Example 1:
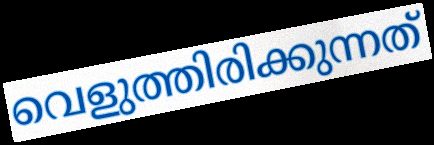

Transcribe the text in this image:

വെളുത്തിരിക്കുന്നത്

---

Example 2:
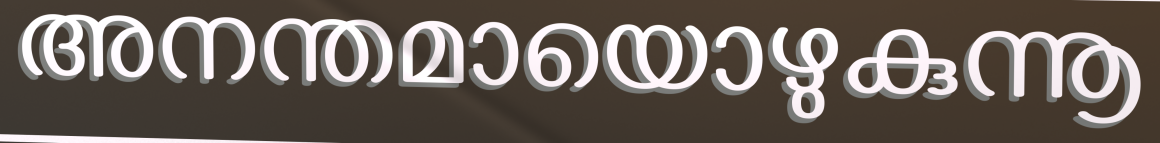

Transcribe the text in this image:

അനന്തമായൊഴുകുന്നൂ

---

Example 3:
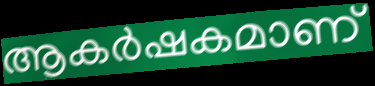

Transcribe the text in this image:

ആകർഷകമാണ്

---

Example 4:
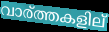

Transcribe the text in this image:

വാര്ത്തകളില്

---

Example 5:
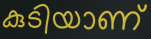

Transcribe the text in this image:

കുടിയാണ്